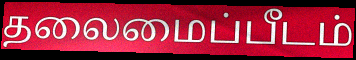
தலைமைப்பீடம்